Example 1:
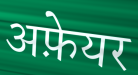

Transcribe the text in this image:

अफ़ेयर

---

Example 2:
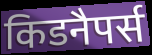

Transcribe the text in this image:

किडनैपर्स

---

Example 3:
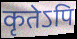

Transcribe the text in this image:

कृतेऽपि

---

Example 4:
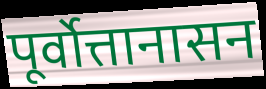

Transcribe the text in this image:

पूर्वोत्तानासन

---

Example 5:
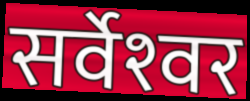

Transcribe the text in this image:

सर्वेश्वर